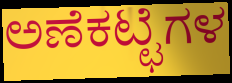
ಅಣೆಕಟ್ಟೆಗಳ